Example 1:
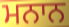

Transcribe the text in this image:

ਮਨਾਨ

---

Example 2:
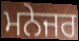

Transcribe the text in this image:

ਮਨੇਜਰ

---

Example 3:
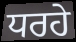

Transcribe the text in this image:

ਧਰਹੇ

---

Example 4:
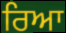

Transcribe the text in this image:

ਰਿਆ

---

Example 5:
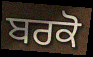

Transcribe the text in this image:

ਬਰਕੋ